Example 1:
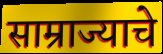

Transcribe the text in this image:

साम्राज्याचे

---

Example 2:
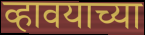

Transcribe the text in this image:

व्हावयाच्या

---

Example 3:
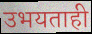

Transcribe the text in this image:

उभयताही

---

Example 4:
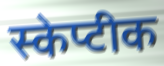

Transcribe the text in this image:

स्केप्टीक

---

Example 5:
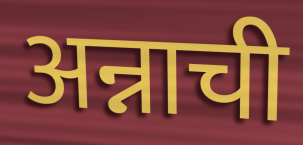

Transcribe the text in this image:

अन्नाची